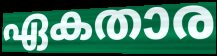
ഏകതാര